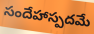
సందేహాస్పదమే